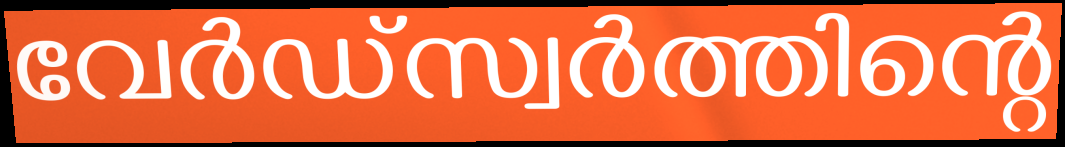
വേർഡ്സ്വർത്തിന്റെ